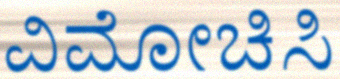
ವಿಮೋಚಿಸಿ